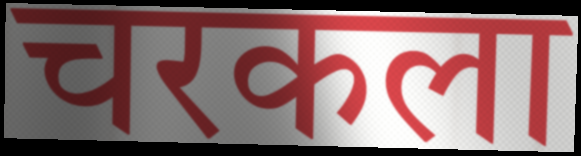
चरकला